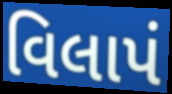
વિલાપં